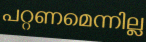
പറ്റണമെന്നില്ല